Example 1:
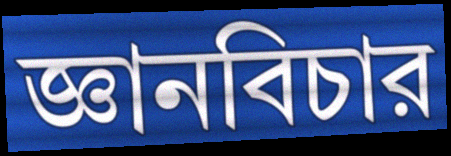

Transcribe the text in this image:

জ্ঞানবিচার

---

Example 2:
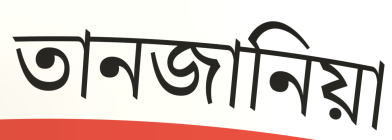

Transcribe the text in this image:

তানজানিয়া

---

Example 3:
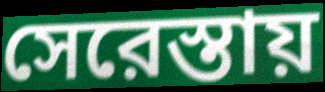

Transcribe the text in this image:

সেরেস্তায়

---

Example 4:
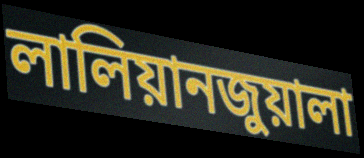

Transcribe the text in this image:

লালিয়ানজুয়ালা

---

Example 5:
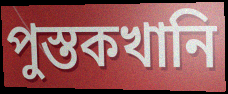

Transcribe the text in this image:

পুস্তকখানি